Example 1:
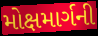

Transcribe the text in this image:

મોક્ષમાર્ગની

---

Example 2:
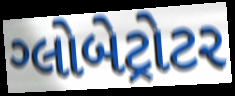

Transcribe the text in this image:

ગ્લોબેટ્રોટર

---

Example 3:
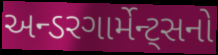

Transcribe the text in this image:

અન્ડરગાર્મેન્ટ્સનો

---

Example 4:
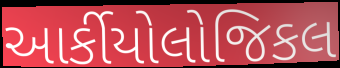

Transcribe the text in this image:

આર્કીયોલોજિકલ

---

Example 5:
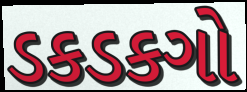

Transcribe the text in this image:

ડકડકગો